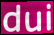
dui